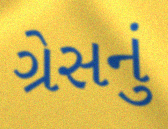
ગ્રેસનું